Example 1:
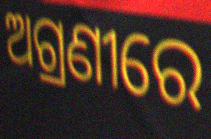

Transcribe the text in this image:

ଅଗ୍ରଣୀରେ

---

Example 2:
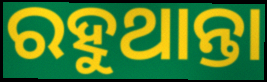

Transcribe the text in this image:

ରହୁଥାନ୍ତା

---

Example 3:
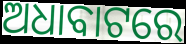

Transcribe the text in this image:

ଅଧାବାଟରେ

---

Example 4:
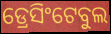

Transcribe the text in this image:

ଡ୍ରେସିଂଟେବୁଲ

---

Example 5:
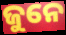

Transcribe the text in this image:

ଜୁନେ